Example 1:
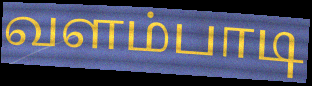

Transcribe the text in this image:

வளம்பாடி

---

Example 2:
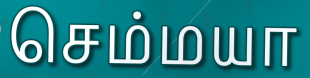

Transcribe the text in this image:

செம்மயா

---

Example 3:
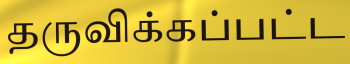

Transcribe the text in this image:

தருவிக்கப்பட்ட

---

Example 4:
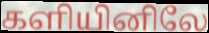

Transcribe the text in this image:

களியினிலே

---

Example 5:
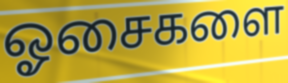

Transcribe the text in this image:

ஓசைகளை